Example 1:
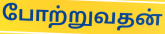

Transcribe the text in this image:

போற்றுவதன்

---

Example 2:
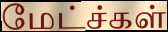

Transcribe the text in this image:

மேட்ச்கள்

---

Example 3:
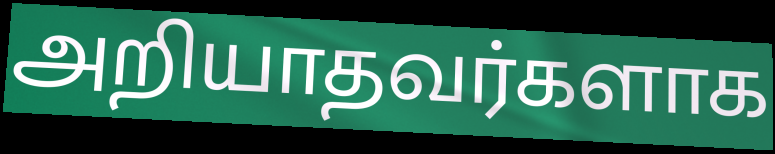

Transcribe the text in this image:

அறியாதவர்களாக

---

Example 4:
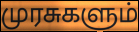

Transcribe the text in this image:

முரசுகளும்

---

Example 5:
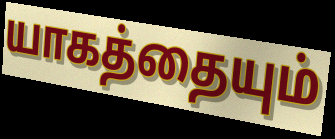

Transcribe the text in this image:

யாகத்தையும்